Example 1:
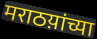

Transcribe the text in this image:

मराठय़ांच्या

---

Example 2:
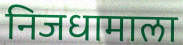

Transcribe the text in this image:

निजधामाला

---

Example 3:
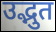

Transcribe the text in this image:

उद्भुत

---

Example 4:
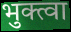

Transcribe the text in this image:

भुक्त्वा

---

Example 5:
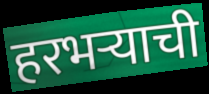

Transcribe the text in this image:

हरभऱ्याची